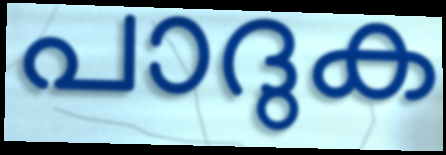
പാദുക